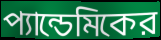
প্যান্ডেমিকের